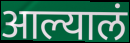
आल्यालं